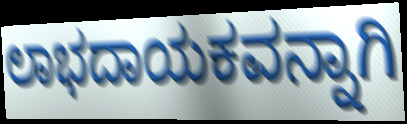
ಲಾಭದಾಯಕವನ್ನಾಗಿ